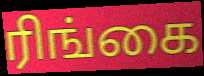
ரிங்கை